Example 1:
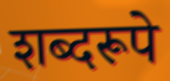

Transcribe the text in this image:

शब्दरूपे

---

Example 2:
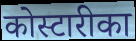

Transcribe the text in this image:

कोस्टारीका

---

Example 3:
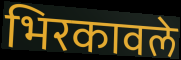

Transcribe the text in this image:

भिरकावले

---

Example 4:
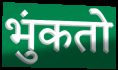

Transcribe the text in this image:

भुंकतो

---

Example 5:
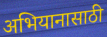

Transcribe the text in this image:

अभियानासाठी